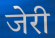
जेरी